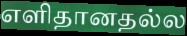
எளிதானதல்ல